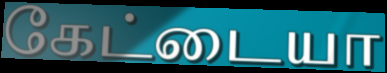
கேட்டையா